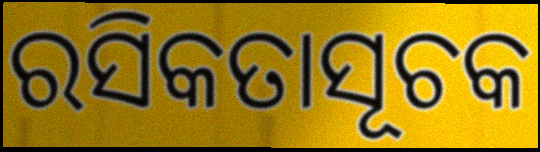
ରସିକତାସୂଚକ